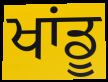
ਖਾਂਡੂ